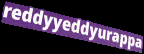
reddyyeddyurappa